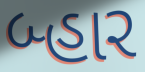
બ્હાર